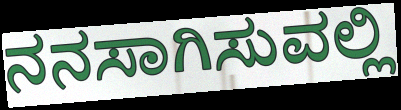
ನನಸಾಗಿಸುವಲ್ಲಿ